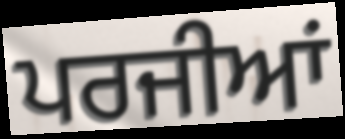
ਪਰਜੀਆਂ